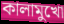
কালামুখো